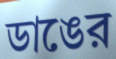
ডাঙের